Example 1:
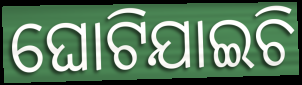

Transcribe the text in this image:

ଘୋଟିଯାଇଚି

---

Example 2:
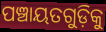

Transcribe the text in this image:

ପଞ୍ଚାୟତଗୁଡ଼ିକୁ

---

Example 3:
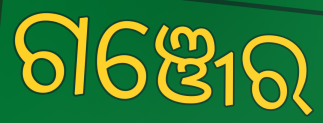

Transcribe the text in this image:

ଗଞ୍ଜେର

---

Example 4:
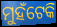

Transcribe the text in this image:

ମୁହଁଟେକି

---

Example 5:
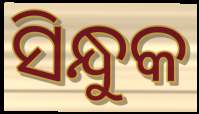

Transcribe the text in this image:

ସିନ୍ଧୁକ